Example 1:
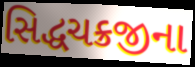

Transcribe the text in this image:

સિદ્ધચક્રજીના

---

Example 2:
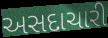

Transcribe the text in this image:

અસદાચારી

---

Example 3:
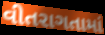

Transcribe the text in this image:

વીતરાગતામાં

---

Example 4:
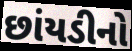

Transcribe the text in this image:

છાંયડીનો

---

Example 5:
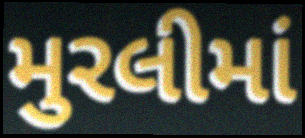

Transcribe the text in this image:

મુરલીમાં